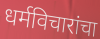
धर्मविचारांचा